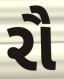
રૌ